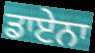
ਡਾਏਨਾ